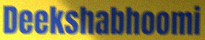
Deekshabhoomi